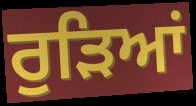
ਰੁੜਿਆਂ